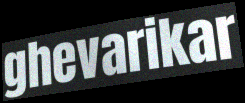
ghevarikar